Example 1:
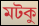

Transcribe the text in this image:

মটকু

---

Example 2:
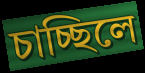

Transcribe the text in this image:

চাচ্ছিলে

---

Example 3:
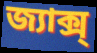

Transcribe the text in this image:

জ্যাক্স্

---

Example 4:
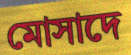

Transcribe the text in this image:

মোসাদে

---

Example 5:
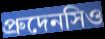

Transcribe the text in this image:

প্রুদেনসিও